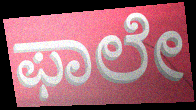
ಫಾಲೇ